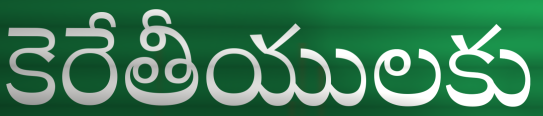
కెరేతీయులకు